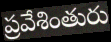
ప్రవేశింతురు